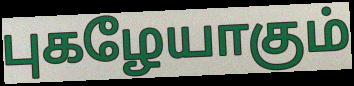
புகழேயாகும்